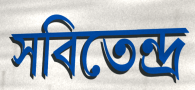
সবিতেন্দ্র